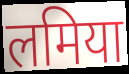
लमिया